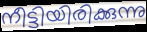
നീട്ടിയിരിക്കുന്നു